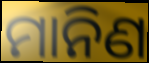
ମାନିଣ